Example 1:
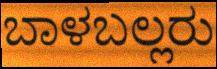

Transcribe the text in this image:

ಬಾಳಬಲ್ಲರು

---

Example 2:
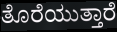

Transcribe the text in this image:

ತೊರೆಯುತ್ತಾರೆ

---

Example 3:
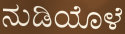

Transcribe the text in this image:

ನುಡಿಯೊಳೆ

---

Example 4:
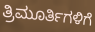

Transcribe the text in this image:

ತ್ರಿಮೂರ್ತಿಗಳಿಗೆ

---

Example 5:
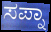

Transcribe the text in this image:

ಸಪ್ನಾ